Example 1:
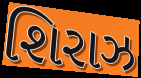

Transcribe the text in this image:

શિરાઝ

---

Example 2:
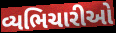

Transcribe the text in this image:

વ્યભિચારીઓ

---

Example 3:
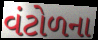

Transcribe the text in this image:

વંટોળના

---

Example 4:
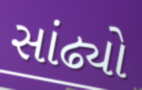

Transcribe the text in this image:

સાંઢ્યો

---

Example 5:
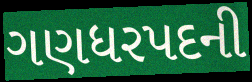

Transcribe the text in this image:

ગણધરપદની